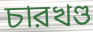
চারখণ্ড